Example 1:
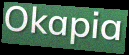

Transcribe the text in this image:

Okapia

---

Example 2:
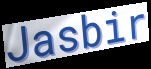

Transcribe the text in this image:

Jasbir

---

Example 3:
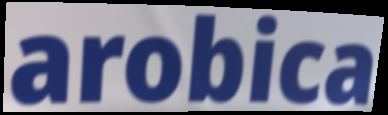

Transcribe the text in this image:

arobica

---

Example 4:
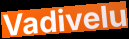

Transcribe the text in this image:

Vadivelu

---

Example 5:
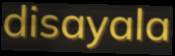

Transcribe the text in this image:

disayala